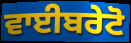
ਵਾਈਬਰੇਟੋ